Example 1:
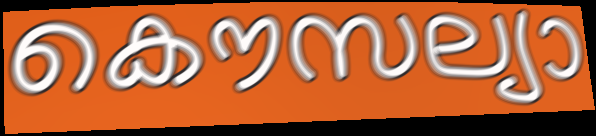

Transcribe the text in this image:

കൌസല്യാ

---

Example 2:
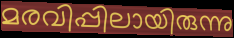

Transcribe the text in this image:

മരവിപ്പിലായിരുന്നു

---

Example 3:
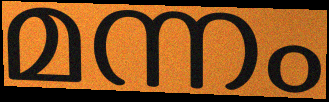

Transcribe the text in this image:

മന്നം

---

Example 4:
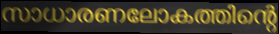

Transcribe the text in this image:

സാധാരണലോകത്തിന്റെ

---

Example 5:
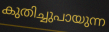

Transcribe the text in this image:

കുതിച്ചുപായുന്ന